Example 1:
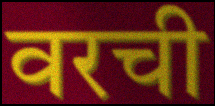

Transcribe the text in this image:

वरची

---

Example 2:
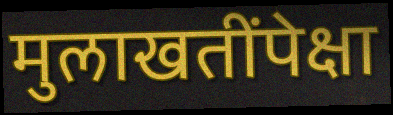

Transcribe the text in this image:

मुलाखतींपेक्षा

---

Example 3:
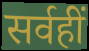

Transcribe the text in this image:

सर्वहीं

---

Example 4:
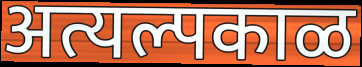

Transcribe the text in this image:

अत्यल्पकाळ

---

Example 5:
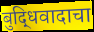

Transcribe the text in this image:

बुद्धिवादाचा